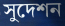
সুদেশন